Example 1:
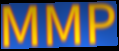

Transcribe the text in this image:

MMP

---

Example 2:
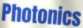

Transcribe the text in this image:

Photonics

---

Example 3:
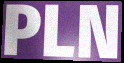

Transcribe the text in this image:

PLN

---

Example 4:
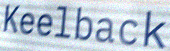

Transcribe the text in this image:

Keelback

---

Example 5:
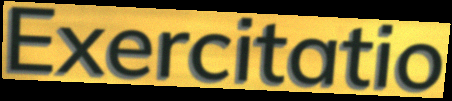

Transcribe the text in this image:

Exercitatio